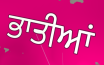
ਭਾਤੀਆਂ